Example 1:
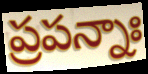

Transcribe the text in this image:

ప్రపన్నాః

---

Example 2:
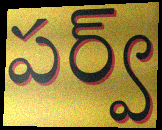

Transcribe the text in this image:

పర్వ్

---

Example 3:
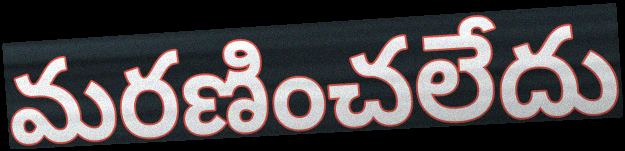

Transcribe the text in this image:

మరణించలేదు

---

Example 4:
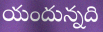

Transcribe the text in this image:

యందున్నది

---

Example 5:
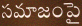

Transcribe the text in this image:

సమాజంపై